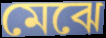
মেঝে